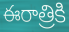
ఈరాత్రికి